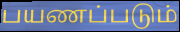
பயணப்படும்